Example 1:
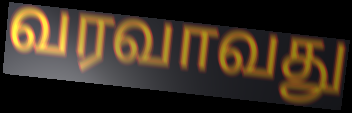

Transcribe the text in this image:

வரவாவது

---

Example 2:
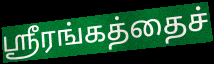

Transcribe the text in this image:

ஸ்ரீரங்கத்தைச்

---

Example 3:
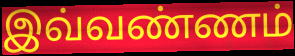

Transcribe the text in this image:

இவ்வண்ணம்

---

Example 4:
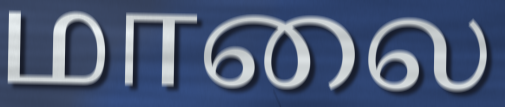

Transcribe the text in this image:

மாலை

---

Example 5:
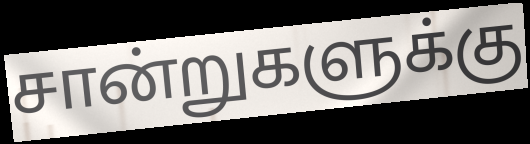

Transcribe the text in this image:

சான்றுகளுக்கு